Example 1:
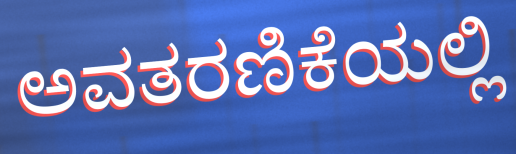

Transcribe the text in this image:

ಅವತರಣಿಕೆಯಲ್ಲಿ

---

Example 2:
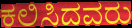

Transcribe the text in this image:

ಕಲಿಸಿದವರು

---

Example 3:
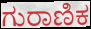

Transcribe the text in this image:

ಗುರಾಣಿಕ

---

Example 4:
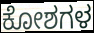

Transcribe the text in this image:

ಕೋಶಗಳ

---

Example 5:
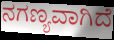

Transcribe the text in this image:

ನಗಣ್ಯವಾಗಿದೆ